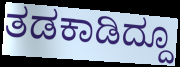
ತಡಕಾಡಿದ್ದೂ